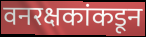
वनरक्षकांकडून